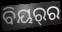
ବିୟର୍‌ର